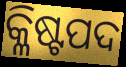
କ୍ଳିଷ୍ଟପଦ